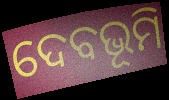
ଦେବଭୂମି